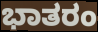
ಭಾತರಂ